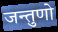
जन्तुणो